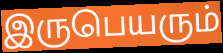
இருபெயரும்